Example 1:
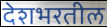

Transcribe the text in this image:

देशभरतील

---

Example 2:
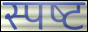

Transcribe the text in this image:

स्‍पष्‍ट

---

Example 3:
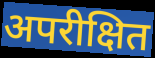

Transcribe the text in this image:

अपरीक्षित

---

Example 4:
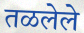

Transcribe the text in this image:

तळलेले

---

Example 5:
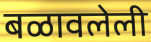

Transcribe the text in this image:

बळावलेली